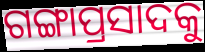
ଗଙ୍ଗାପ୍ରସାଦକୁ